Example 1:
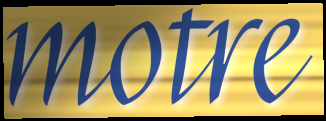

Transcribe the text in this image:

motre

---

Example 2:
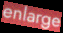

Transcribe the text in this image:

enlarge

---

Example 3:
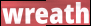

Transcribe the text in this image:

wreath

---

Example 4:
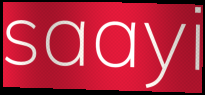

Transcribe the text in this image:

saayi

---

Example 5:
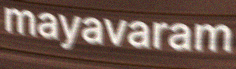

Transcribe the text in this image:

mayavaram